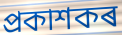
প্ৰকাশকৰ